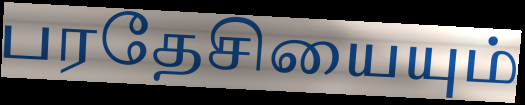
பரதேசியையும்